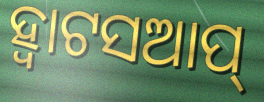
ହ୍ବାଟସଆପ୍